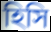
হিসি